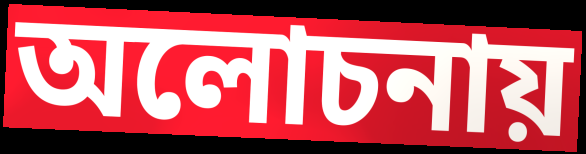
অলোচনায়